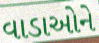
વાડાઓને